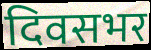
दिवसभर